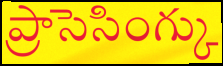
ప్రాసెసింగ్కు